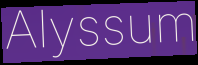
Alyssum